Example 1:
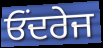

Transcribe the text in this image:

ਓਂਦਰੇਜ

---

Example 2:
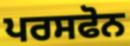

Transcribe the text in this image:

ਪਰਸਫੋਨ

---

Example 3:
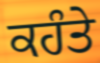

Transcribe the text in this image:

ਕਹੰਤੇ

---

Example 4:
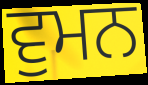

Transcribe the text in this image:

ਵੁਮਨ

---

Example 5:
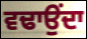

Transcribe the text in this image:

ਵਢਾਉਂਦਾ